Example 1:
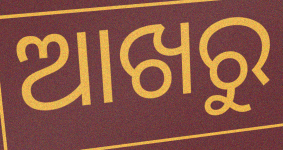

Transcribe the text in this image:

ଆଖରୁ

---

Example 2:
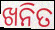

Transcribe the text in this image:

ଖନିତ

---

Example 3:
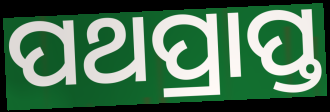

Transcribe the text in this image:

ପଥପ୍ରାପ୍ତ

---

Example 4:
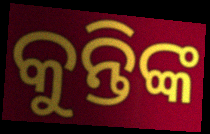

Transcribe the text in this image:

କୁନ୍ତିଙ୍କ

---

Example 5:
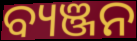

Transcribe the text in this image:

ବ୍ୟଞ୍ଜନ